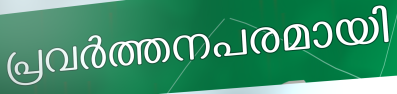
പ്രവർത്തനപരമായി